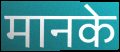
मानके